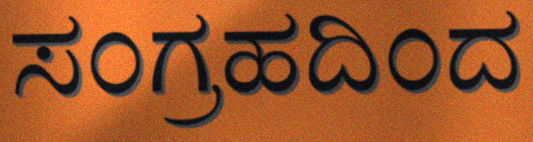
ಸಂಗ್ರಹದಿಂದ